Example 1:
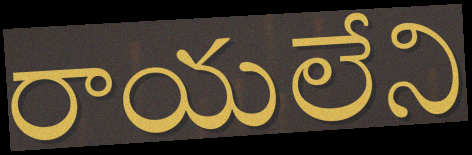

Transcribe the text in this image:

రాయలేని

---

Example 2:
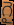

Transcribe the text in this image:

గై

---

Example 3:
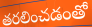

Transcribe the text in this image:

తరలించడంతో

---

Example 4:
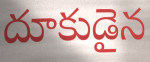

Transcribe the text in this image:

దూకుడైన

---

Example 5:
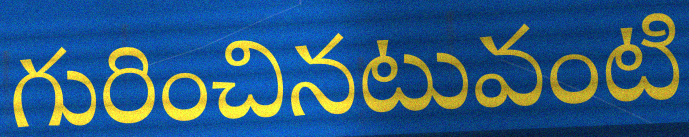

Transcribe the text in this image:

గురించినటువంటి